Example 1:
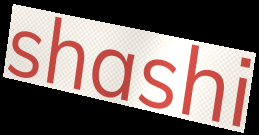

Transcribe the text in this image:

shashi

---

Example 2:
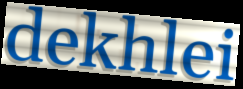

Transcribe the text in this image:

dekhlei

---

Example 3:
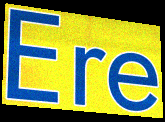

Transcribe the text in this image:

Ere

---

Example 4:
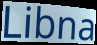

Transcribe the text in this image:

Libna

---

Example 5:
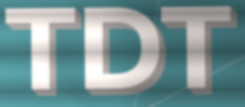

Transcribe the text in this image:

TDT